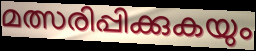
മത്സരിപ്പിക്കുകയും